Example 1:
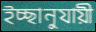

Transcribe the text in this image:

ইচ্ছানুযায়ী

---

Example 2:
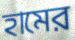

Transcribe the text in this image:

হামের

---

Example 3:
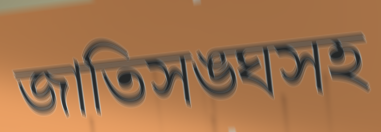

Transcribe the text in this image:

জাতিসঙ্ঘসহ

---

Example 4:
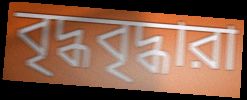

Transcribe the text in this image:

বৃদ্ধবৃদ্ধারা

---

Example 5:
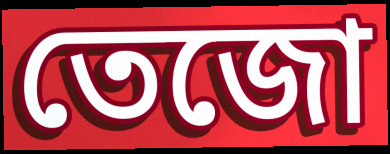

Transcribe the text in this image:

তেজো